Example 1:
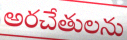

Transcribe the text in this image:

అరచేతులను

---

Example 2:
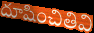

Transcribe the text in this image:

దూషించితివి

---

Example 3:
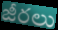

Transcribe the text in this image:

జీరలు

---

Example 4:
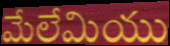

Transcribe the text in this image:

మేలేమియు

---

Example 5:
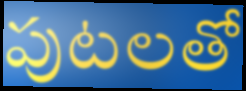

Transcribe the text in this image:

పుటలతో